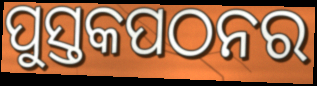
ପୁସ୍ତକପଠନର